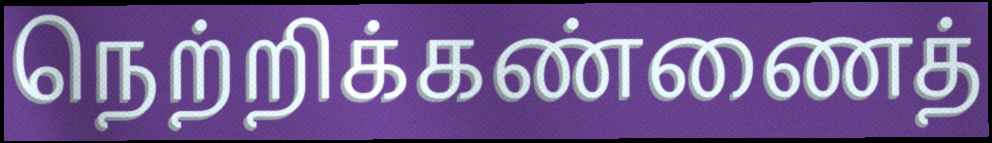
நெற்றிக்கண்ணைத்